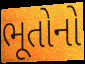
ભૂતોનો